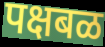
पक्षबळ